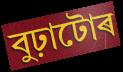
বুঢ়াটোৰ